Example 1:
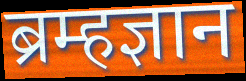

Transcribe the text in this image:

ब्रम्हज्ञान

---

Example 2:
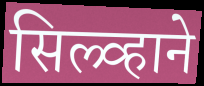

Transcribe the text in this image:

सिल्व्हाने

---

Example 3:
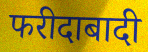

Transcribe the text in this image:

फरीदाबादी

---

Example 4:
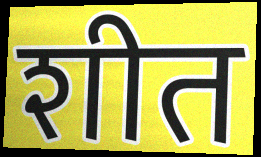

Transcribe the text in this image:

शीत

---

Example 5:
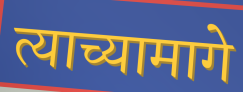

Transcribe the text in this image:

त्याच्यामागे